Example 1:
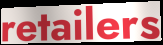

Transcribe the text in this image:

retailers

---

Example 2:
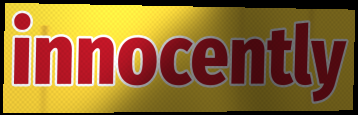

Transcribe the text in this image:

innocently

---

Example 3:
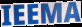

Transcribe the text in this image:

IEEMA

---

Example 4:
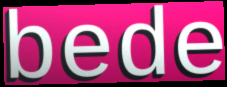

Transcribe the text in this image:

bede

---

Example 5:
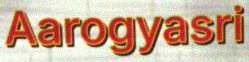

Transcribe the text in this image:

Aarogyasri